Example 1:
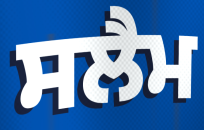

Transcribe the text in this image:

ਸਲੈਮ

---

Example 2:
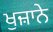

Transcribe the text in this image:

ਖੁਜ਼ਾਨੇ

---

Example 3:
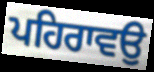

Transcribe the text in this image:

ਪਹਿਰਾਵਉ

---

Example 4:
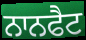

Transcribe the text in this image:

ਨਾਨਫੈਟ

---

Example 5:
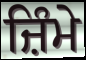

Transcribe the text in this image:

ਜ਼ਿੰਮੇ